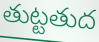
తుట్టతుద